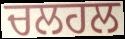
ਚਲਹਲ